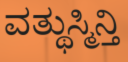
ವತ್ಥುಸ್ಮಿನ್ತಿ